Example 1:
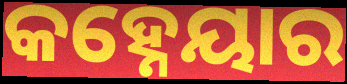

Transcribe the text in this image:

କହ୍ନେୟାର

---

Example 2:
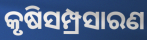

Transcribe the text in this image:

କୃଷିସମ୍ପ୍ରସାରଣ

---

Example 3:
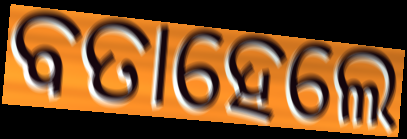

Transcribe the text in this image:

ବତାହେଲେ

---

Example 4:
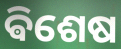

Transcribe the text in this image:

ଵିଶେଷ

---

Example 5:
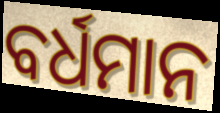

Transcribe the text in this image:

ବର୍ଧମାନ